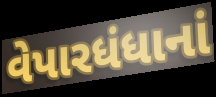
વેપારધંધાનાં